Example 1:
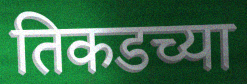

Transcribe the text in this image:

तिकडच्या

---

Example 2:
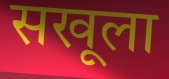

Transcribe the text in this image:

सखूला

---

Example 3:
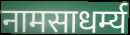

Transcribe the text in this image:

नामसाधर्म्य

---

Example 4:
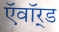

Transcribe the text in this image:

ऍवॉर्ड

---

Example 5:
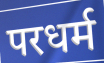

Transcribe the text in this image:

परधर्म